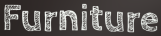
Furniture